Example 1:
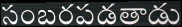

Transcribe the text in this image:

సంబరపడతాడు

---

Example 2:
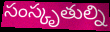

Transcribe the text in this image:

సంస్కృతుల్ని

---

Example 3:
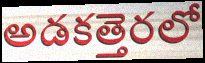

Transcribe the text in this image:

అడకత్తెరలో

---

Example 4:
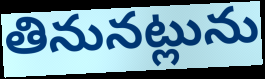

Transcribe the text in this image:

తినునట్లును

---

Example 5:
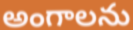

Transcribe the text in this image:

అంగాలను